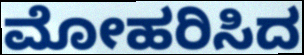
ಮೋಹರಿಸಿದ